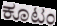
ಕೂಟಂ